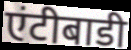
एंटीबाडी